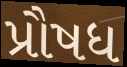
પ્રૌષધ